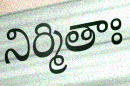
నిర్మితాః